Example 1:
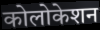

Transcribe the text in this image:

कोलोकेशन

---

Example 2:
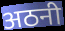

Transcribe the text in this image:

अठनी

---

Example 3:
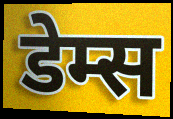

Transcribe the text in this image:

डेम्स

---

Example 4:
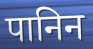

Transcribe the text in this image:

पानिन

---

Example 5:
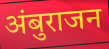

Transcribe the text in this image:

अंबुराजन